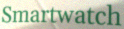
Smartwatch